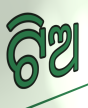
ଟିଅ